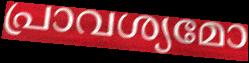
പ്രാവശ്യമോ